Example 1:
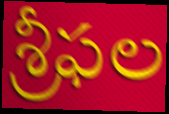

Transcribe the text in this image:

శ్రీఫల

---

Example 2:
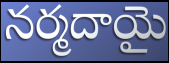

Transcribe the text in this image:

నర్మదాయై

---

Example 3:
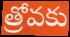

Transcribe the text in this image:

త్రోవకు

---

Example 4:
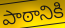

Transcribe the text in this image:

పాఠానికి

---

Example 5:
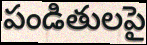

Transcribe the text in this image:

పండితులపై